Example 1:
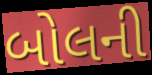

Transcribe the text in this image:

બોલની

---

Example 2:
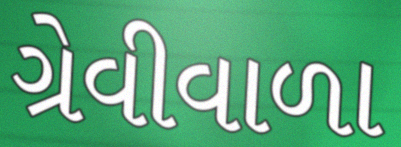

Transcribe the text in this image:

ગ્રેવીવાળા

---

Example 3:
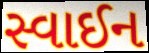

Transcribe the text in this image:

સ્વાઈન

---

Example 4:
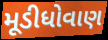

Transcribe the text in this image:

મૂડીધોવાણ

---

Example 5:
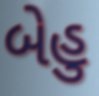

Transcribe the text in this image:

બેહુ